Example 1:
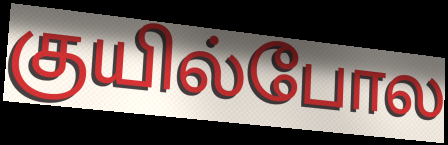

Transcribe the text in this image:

குயில்போல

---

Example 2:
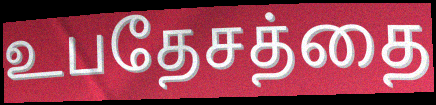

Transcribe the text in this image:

உபதேசத்தை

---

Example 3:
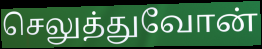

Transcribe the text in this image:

செலுத்துவோன்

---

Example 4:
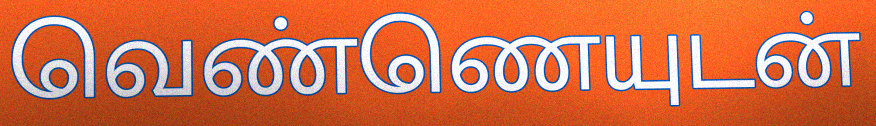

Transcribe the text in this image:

வெண்ணெயுடன்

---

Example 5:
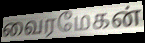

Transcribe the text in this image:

வைரமேகன்